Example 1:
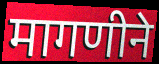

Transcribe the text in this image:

मागणीने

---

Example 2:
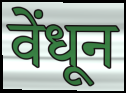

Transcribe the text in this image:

वेंधून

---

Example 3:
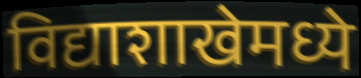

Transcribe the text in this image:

विद्याशाखेमध्ये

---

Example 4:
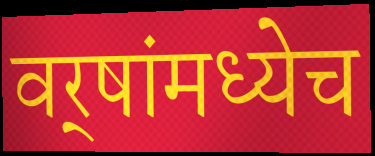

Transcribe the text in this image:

वर्षांमध्येच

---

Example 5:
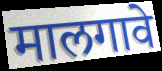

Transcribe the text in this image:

मालगावे